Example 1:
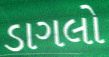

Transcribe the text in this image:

ડાગલો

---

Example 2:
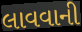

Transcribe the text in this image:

લાવવાની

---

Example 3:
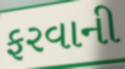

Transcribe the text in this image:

ફરવાની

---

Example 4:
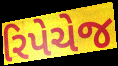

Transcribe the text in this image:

રિપેચેજ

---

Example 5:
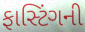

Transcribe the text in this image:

ફાસ્ટિંગની